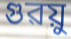
গুৱয়ু